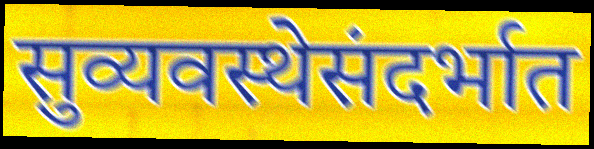
सुव्यवस्थेसंदर्भात